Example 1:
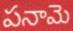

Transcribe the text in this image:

పనామె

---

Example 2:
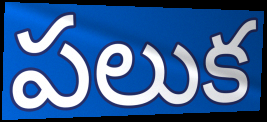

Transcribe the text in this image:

పలుక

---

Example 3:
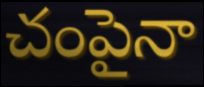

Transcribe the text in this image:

చంపైనా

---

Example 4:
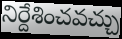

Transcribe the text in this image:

నిర్దేశించవచ్చు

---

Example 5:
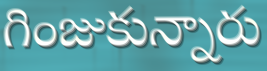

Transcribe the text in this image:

గింజుకున్నారు